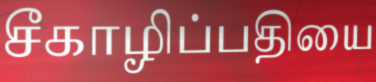
சீகாழிப்பதியை